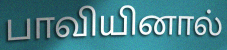
பாவியினால்